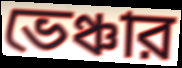
ভেঞ্চার